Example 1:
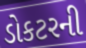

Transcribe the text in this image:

ડોકટરની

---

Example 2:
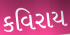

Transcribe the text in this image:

કવિરાય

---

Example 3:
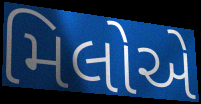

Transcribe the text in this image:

મિલોએ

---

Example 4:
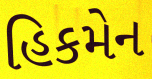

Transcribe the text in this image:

હિકમેન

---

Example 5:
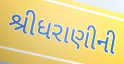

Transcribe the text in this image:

શ્રીધરાણીની